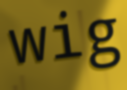
wig